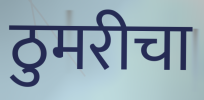
ठुमरीचा